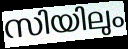
സിയിലും